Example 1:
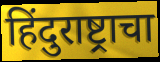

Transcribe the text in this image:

हिंदुराष्ट्राचा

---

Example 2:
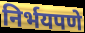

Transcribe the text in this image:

निर्भयपणे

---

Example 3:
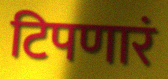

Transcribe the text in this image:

टिपणारं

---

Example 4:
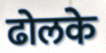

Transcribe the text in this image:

ढोलके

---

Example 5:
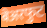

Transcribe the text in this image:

बेअरफुट